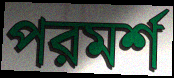
পরমর্শ